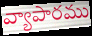
వ్యాపారము